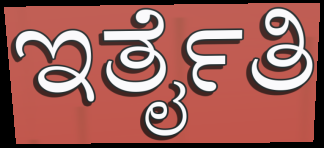
ಇರ್ತೈತಿ